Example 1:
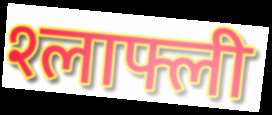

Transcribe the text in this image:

श्लाफ्ली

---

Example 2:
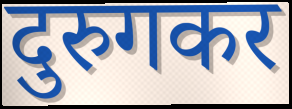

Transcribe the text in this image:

दुरुगकर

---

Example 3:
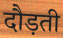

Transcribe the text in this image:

दौड़ती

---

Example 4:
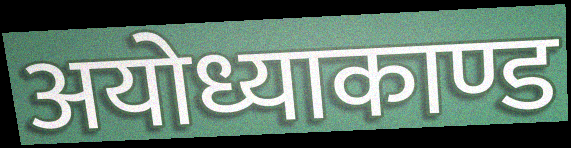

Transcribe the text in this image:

अयोध्याकाण्ड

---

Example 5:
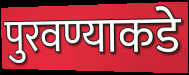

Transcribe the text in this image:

पुरवण्याकडे